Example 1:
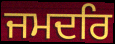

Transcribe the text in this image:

ਜਮਦਰਿ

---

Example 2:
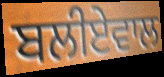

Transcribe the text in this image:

ਬਲੀਏਵਾਲ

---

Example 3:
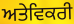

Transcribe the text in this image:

ਅਤੇਵਿਕਰੀ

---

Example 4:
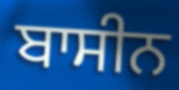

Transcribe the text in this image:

ਬਾਸੀਨ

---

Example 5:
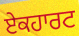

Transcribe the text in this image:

ਏਕਹਾਰਟ